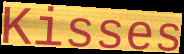
Kisses